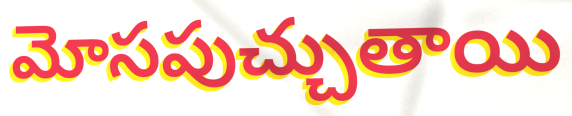
మోసపుచ్చుతాయి